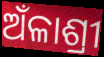
ଅଁଳାଶ୍ରୀ